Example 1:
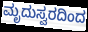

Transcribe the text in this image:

ಮೃದುಸ್ವರದಿಂದ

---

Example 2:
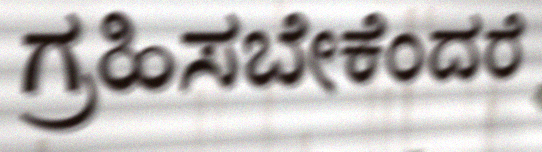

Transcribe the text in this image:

ಗ್ರಹಿಸಬೇಕೆಂದರೆ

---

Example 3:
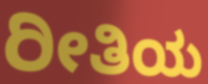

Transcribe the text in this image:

ರೀತಿಯ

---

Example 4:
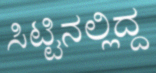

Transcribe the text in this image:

ಸಿಟ್ಟಿನಲ್ಲಿದ್ದ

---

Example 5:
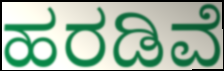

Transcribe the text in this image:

ಹರಡಿವೆ